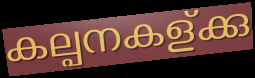
കല്പനകള്ക്കു